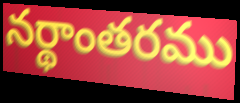
నర్థాంతరము